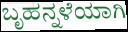
ಬೃಹನ್ನಳೆಯಾಗಿ